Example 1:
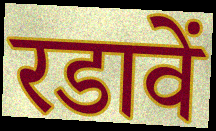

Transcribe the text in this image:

रडावें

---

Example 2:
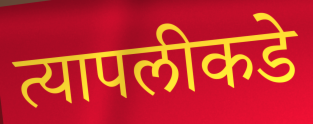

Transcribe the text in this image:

त्यापलीकडे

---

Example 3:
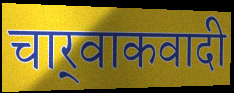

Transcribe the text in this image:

चार्वाकवादी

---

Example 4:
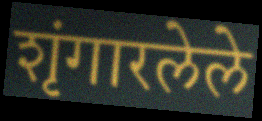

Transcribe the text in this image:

शृंगारलेले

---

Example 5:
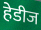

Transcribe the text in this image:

हेडीज